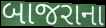
બાજરાના